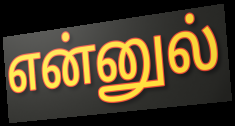
என்னுல்